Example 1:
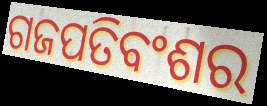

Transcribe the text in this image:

ଗଜପତିବଂଶର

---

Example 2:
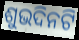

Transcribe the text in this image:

ଶୁଭଦିନଟି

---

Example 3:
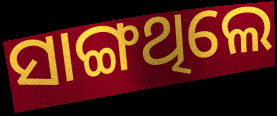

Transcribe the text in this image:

ସାଙ୍ଗଥିଲେ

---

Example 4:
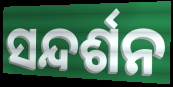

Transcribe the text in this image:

ସନ୍ଦର୍ଶନ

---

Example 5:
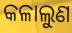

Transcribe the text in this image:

କଳାଲୁଣ